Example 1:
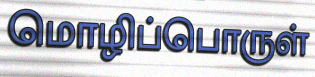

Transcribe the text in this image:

மொழிப்பொருள்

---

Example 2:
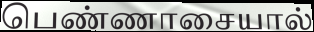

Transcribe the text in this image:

பெண்ணாசையால்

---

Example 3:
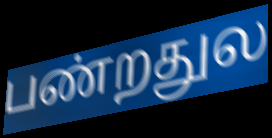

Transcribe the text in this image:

பண்றதுல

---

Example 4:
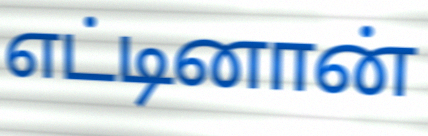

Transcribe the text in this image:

எட்டினான்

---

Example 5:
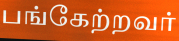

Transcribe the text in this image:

பங்கேற்றவர்